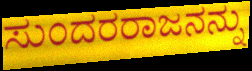
ಸುಂದರರಾಜನನ್ನು